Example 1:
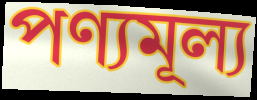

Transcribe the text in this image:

পণ্যমূল্য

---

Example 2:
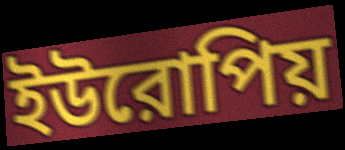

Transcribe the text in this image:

ইউরোপিয়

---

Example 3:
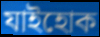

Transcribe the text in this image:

যাইহোক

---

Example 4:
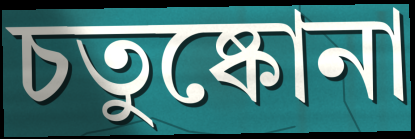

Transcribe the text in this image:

চতুষ্কোনা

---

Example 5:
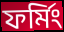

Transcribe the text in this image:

ফর্মিং